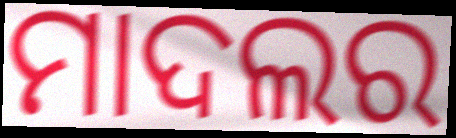
ମାଦଲର